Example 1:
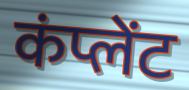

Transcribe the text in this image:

कंप्लेंट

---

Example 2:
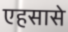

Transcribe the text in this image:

एहसासे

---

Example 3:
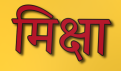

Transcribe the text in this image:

मिक्षा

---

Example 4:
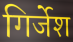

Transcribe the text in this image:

गिर्जेश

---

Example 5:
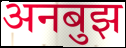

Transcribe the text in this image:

अनबुझ